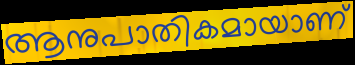
ആനുപാതികമായാണ്